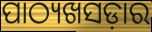
ପାଠ୍ୟଖସଡ଼ାର